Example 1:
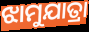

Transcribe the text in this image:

ଝାମୁଯାତ୍ରା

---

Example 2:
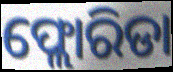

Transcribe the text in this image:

ଫ୍ଲୋରିଡା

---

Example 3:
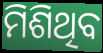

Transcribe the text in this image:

ମିଶିଥିବ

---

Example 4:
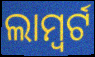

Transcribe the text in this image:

ଲାମ୍ବର୍ଟ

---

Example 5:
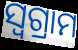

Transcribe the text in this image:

ସ୍ୱଗ୍ରାମ